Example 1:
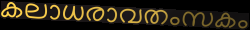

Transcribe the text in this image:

കലാധരാവതംസകം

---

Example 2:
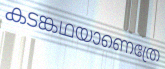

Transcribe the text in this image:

കടങ്കഥയാണെത്രേ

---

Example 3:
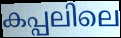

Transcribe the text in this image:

കപ്പലിലെ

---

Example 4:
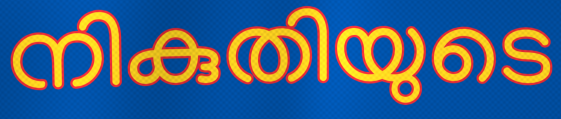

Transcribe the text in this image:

നികുതിയുടെ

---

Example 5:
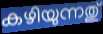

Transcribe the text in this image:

കഴിയുന്നതു്